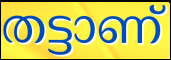
തട്ടാണ്